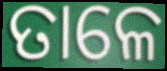
ତାଳେ